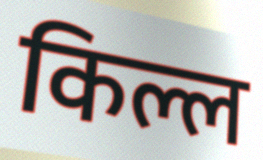
किल्ल